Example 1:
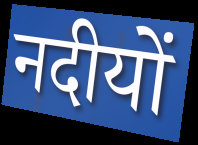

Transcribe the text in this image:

नदीयों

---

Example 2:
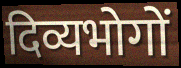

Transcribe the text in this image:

दिव्यभोगों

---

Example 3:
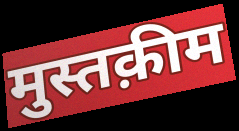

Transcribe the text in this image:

मुस्तक़ीम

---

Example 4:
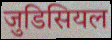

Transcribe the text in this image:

जुडिसियल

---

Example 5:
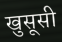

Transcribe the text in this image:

खुसूसी